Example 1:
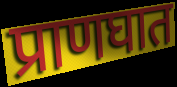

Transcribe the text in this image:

प्राणघात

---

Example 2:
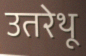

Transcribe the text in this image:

उतरेथू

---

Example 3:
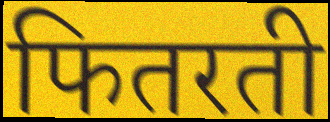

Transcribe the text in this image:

फितरती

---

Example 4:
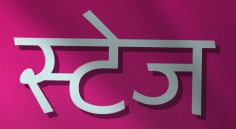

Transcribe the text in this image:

स्‍टेज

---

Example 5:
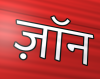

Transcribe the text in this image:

ज़ॉन